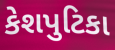
કેશપુટિકા